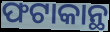
ଫଟାକାନ୍ଥ